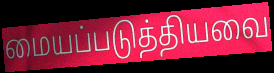
மையப்படுத்தியவை